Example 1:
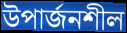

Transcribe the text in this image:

উপার্জনশীল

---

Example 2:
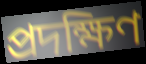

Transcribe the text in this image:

প্রদক্ষিণ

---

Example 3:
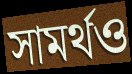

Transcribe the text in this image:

সামর্থও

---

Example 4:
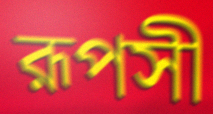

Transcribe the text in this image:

রূপসী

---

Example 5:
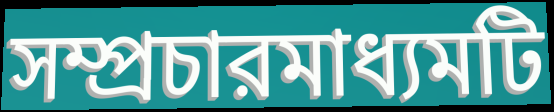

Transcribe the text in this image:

সম্প্রচারমাধ্যমটি